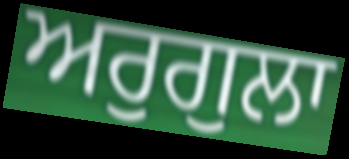
ਅਰੁਗੁਲਾ